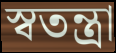
স্বতন্ত্রা